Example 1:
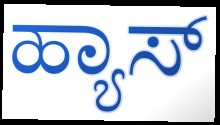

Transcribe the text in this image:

ಹ್ಯಾಸ್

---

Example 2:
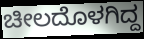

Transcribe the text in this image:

ಚೀಲದೊಳಗಿದ್ದ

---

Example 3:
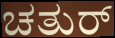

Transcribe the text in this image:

ಚತುರ್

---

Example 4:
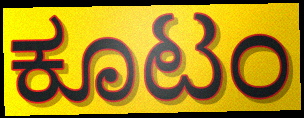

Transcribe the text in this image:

ಕೂಟಂ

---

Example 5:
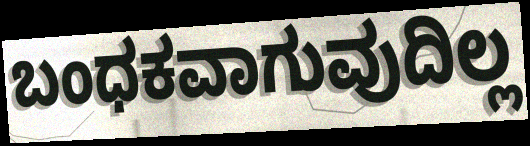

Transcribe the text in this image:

ಬಂಧಕವಾಗುವುದಿಲ್ಲ